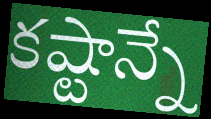
కష్టాన్నే